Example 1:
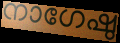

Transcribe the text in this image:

നാഗേഷു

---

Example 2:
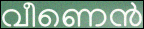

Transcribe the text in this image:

വീണെൻ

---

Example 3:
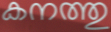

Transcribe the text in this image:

കനത്തു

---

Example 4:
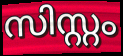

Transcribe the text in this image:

സിസ്റ്റം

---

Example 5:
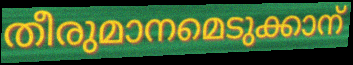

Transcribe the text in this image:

തീരുമാനമെടുക്കാന്